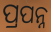
ପ୍ରପନ୍ନ